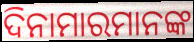
ଦିନାମାରମାନଙ୍କ